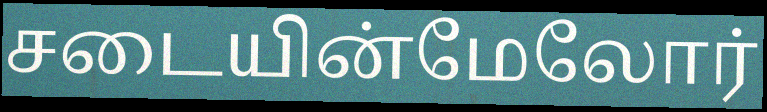
சடையின்மேலோர்